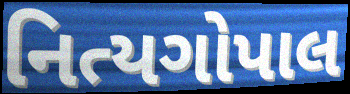
નિત્યગોપાલ